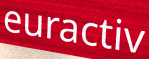
euractiv